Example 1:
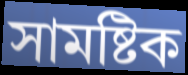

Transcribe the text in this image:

সামষ্টিক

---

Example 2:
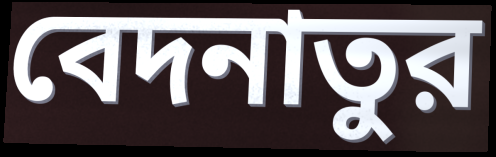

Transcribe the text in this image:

বেদনাতুর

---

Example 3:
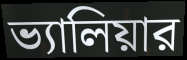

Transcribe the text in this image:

ভ্যালিয়ার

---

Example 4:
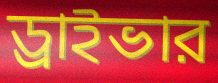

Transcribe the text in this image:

ড্রাইভার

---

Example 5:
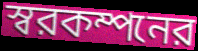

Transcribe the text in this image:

স্বরকম্পনের